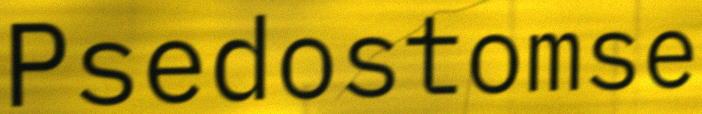
Psedostomse